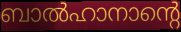
ബാൽഹാനാന്റെ